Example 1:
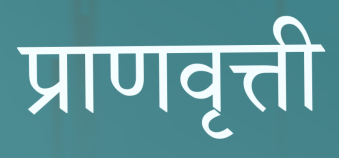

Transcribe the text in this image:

प्राणवृत्ती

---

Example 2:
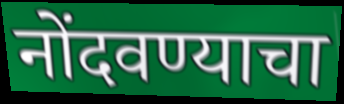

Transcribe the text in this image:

नोंदवण्याचा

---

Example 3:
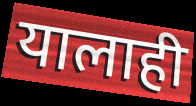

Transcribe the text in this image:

यालाही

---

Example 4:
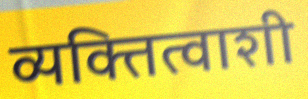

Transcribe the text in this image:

व्यक्तित्वाशी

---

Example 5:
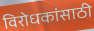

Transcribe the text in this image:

विरोधकांसाठी